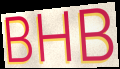
BHB